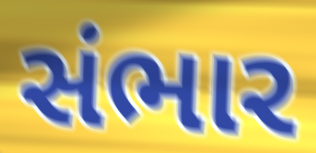
સંભાર